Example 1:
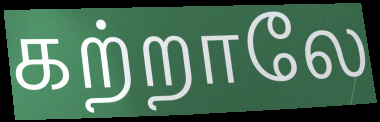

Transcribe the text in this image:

கற்றாலே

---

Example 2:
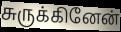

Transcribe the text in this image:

சுருக்கினேன்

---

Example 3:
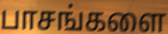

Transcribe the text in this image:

பாசங்களை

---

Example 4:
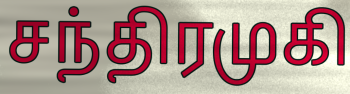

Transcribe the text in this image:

சந்திரமுகி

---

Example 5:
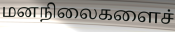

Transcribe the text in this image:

மனநிலைகளைச்